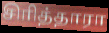
சிரித்தாரா